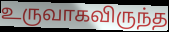
உருவாகவிருந்த